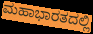
ಮಹಾಭಾರತದಲ್ಲಿ